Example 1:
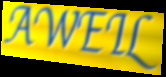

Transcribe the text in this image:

AWEIL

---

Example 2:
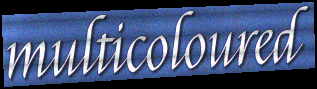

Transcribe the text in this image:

multicoloured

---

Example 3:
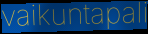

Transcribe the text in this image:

vaikuntapali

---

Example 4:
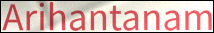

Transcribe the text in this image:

Arihantanam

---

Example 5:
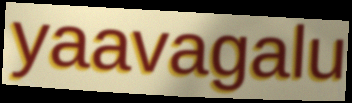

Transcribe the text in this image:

yaavagalu